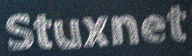
Stuxnet